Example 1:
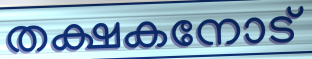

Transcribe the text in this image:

തക്ഷകനോട്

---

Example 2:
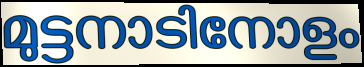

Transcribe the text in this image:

മുട്ടനാടിനോളം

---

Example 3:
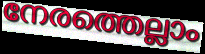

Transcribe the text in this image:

നേരത്തെല്ലാം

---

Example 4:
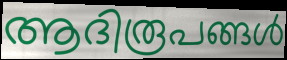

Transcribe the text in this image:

ആദിരൂപങ്ങൾ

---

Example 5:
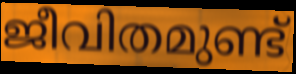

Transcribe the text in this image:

ജീവിതമുണ്ട്